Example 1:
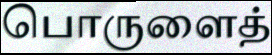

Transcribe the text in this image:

பொருளைத்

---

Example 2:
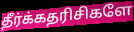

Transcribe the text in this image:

தீர்க்கதரிசிகளே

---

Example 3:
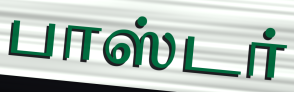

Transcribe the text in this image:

பாஸ்டர்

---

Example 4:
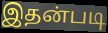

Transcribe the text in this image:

இதன்படி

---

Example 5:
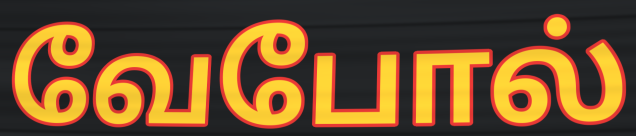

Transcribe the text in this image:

வேபோல்